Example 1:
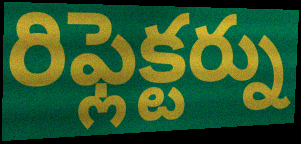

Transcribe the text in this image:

రిఫ్లెక్టర్ను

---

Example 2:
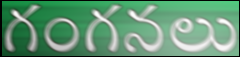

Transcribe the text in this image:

గంగనలు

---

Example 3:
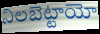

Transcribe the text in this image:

నిలబెట్టాయో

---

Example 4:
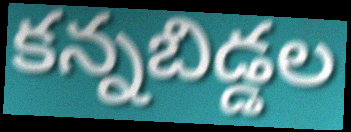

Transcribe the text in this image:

కన్నబిడ్డల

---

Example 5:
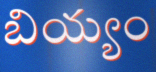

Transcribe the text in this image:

బియ్యం